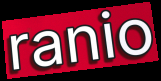
ranio